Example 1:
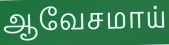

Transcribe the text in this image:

ஆவேசமாய்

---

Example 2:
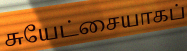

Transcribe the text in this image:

சுயேட்சையாகப்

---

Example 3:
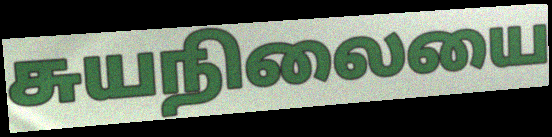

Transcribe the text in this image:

சுயநிலையை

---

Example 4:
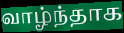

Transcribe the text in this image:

வாழ்ந்தாக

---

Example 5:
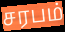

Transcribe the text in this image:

சரபம்